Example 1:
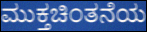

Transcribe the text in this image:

ಮುಕ್ತಚಿಂತನೆಯ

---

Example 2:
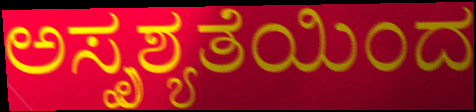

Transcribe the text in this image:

ಅಸ್ಪೃಶ್ಯತೆಯಿಂದ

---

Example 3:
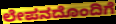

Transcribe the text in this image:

ಲೇಪನದೊಂದಿಗೆ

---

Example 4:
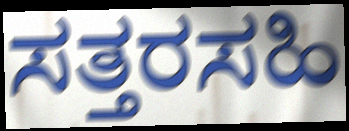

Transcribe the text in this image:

ಸತ್ತರಸಹಿ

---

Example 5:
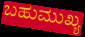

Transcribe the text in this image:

ಬಹುಮುಖ್ಯ